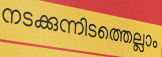
നടക്കുന്നിടത്തെല്ലാം